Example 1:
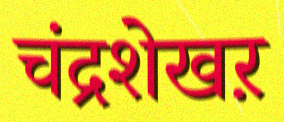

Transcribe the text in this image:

चंद्रशेखऱ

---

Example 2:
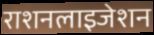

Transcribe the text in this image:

राशनलाइजेशन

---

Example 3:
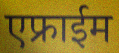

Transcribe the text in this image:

एफ्राईम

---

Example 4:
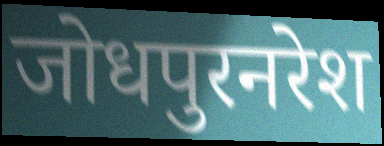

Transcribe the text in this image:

जोधपुरनरेश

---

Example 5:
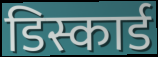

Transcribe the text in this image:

डिस्कार्ड